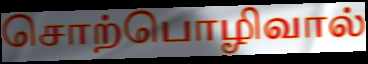
சொற்பொழிவால்